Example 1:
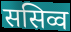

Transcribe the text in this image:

ससिव्व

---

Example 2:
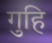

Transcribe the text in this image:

गुहि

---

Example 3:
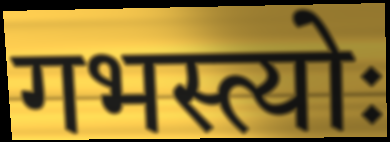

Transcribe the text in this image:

गभस्त्योः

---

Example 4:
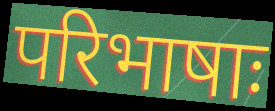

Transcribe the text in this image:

परिभाषाः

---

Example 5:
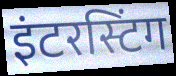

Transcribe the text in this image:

इंटरस्टिंग